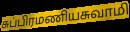
சுப்பிரமணியசுவாமி